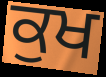
ਕੁਖ